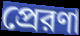
প্রেরণা